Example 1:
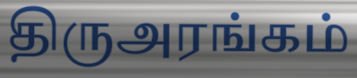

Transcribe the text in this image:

திருஅரங்கம்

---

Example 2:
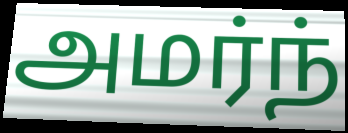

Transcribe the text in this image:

அமர்ந்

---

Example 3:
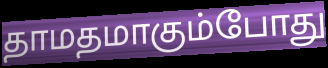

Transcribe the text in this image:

தாமதமாகும்போது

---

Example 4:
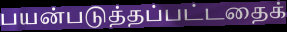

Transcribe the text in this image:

பயன்படுத்தப்பட்டதைக்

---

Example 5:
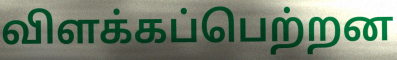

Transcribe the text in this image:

விளக்கப்பெற்றன